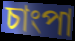
চাংপা